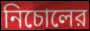
নিচোলের